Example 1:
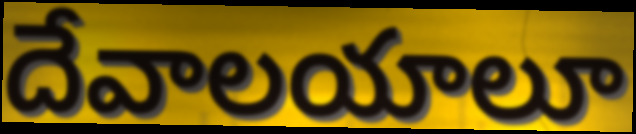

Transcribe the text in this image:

దేవాలయాలూ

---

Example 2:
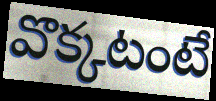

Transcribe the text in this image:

వొక్కటంటే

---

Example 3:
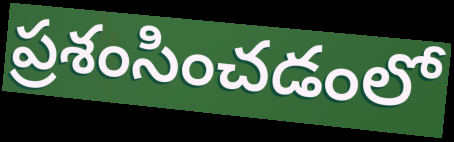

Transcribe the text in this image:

ప్రశంసించడంలో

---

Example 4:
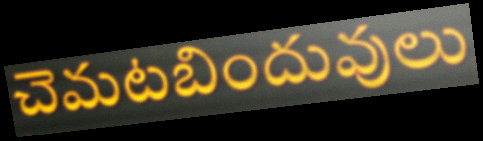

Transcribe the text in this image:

చెమటబిందువులు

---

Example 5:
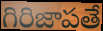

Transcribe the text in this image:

గిరిజాపతే